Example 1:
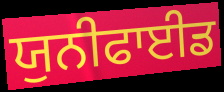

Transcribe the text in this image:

ਯੁਨੀਫਾਈਡ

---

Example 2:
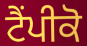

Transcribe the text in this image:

ਟੈਂਪੀਕੋ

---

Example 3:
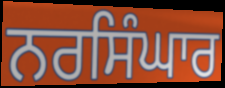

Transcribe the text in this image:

ਨਰਸਿੰਘਾਰ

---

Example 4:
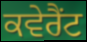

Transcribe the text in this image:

ਕਵੇਰੈਂਟ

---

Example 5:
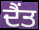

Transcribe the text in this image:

ਦੈਂਤ